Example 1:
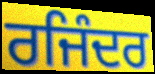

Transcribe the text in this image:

ਰਜਿੰਦਰ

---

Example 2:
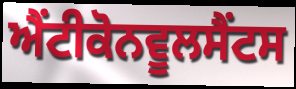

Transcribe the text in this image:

ਐਂਟੀਕੋਨਵੂਲਸੈਂਟਸ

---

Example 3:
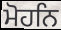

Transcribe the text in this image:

ਮੋਹਨਿ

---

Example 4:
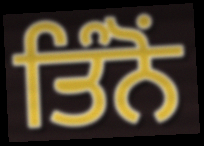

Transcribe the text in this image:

ਤਿੰਨੋਂ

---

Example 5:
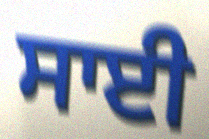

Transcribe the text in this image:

ਸਾਈ